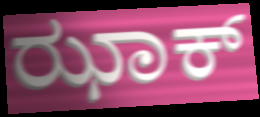
ಝಾಕ್